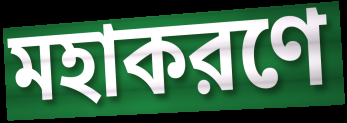
মহাকরণে